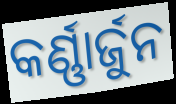
କର୍ଣ୍ଣାର୍ଜୁନ